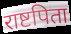
राष्टपिता